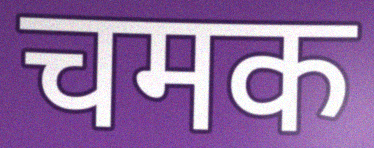
चमक